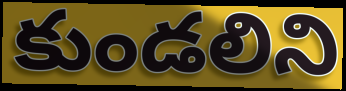
కుండలిని